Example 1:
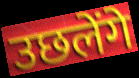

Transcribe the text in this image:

उछलेंगे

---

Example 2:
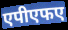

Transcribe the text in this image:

एपीएफए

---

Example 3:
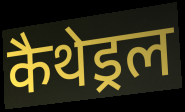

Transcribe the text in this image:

कैथेड्रल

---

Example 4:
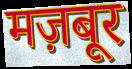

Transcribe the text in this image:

मज़बूर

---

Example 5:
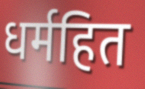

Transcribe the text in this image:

धर्महित